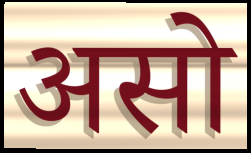
असो